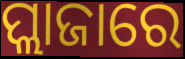
ପ୍ଲାଜାରେ